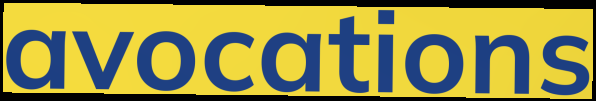
avocations